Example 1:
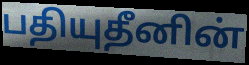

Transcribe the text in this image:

பதியுதீனின்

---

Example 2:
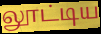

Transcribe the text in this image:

லூட்டிய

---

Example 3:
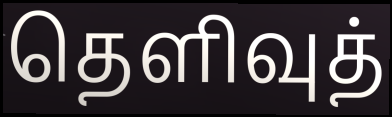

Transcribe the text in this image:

தெளிவுத்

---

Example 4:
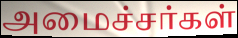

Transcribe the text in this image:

அமைச்சர்கள்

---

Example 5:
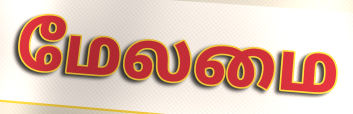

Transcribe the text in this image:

மேலமை